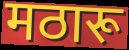
मठारू